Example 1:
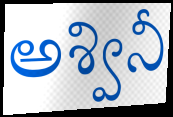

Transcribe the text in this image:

అశ్వినీ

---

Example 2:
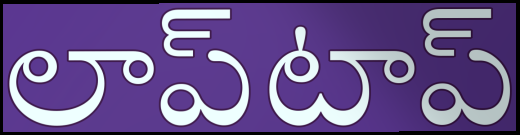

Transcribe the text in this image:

లాప్‌టాప్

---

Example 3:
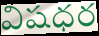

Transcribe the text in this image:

విషధర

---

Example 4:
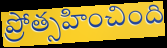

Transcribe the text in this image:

ప్రోత్సహించింది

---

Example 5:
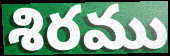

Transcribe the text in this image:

శిరము